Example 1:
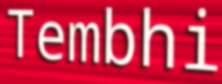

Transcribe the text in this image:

Tembhi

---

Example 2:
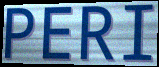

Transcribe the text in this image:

PERI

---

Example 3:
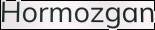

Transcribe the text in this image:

Hormozgan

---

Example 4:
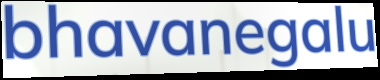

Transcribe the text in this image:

bhavanegalu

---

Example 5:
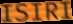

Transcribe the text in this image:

ISIRI